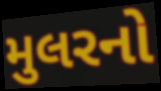
મુલરનો